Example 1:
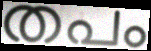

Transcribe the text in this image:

തപം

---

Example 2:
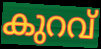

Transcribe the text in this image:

കുറവ്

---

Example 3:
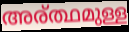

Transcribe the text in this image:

അര്ത്ഥമുള്ള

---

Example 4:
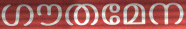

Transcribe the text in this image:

ഗൗതമേന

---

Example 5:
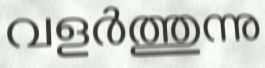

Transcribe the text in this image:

വളർത്തുന്നു